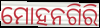
ମୋହନଗିରି